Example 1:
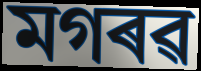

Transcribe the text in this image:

মগৰৱ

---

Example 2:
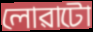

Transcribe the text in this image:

লোৱাটো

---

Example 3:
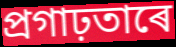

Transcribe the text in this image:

প্ৰগাঢ়তাৰে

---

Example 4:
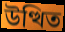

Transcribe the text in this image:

উত্থিত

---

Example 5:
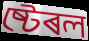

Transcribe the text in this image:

ষ্টেৰল